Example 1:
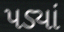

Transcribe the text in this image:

પડ્યાં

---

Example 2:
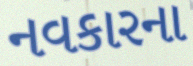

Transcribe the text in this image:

નવકારના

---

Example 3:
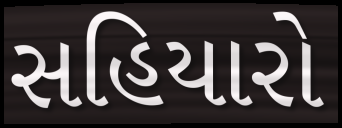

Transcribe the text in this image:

સહિયારો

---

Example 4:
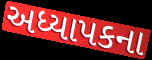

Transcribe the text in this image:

અધ્યાપકના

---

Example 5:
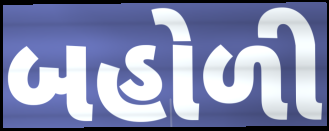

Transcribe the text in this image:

બહોળી